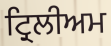
ਟ੍ਰਿਲੀਅਮ